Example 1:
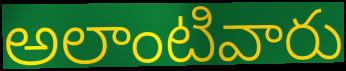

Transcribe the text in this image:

అలాంటివారు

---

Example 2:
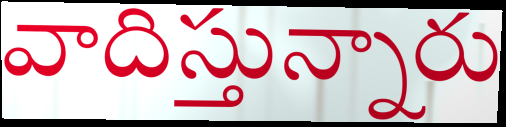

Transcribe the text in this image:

వాదిస్తున్నారు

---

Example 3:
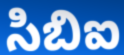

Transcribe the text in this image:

సిబిఐ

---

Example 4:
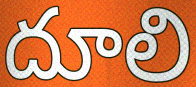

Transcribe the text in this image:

దూలి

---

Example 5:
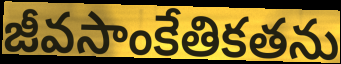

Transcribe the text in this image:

జీవసాంకేతికతను